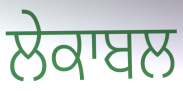
ਲੇਕਾਬਲ